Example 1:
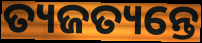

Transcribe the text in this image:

ତ୍ୟଜତ୍ୟନ୍ତେ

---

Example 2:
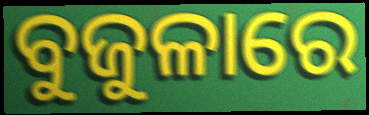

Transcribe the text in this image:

ବୁଜୁଳାରେ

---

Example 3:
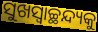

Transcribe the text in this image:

ସୁଖସ୍ଵାଚ୍ଛନ୍ଦ୍ୟକୁ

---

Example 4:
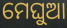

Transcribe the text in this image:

ମେଘୁଆ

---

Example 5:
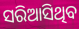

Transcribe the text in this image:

ସରିଆସିଥିବ